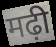
मढ़ी